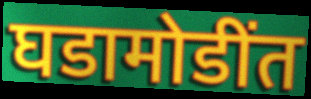
घडामोडींत